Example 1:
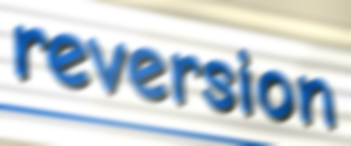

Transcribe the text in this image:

reversion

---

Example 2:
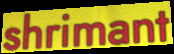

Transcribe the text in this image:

shrimant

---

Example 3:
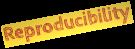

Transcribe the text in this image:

Reproducibility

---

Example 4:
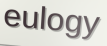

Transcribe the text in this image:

eulogy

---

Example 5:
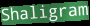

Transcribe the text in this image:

Shaligram